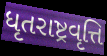
ધૃતરાષ્ટ્રવૃત્તિ